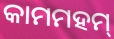
କାମମହମ୍